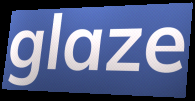
glaze